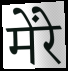
मेंरे